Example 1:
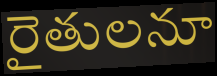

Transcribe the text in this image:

రైతులనూ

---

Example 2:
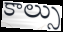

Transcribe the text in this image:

కాల్సు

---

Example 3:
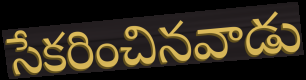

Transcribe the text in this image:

సేకరించినవాడు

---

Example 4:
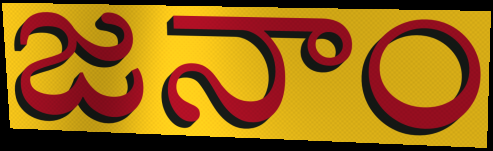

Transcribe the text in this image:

జనాం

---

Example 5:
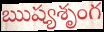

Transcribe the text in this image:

ఋష్యశృంగ